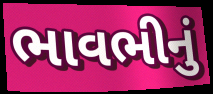
ભાવભીનું